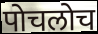
पोचलोच